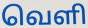
வெளி